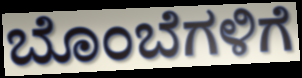
ಬೊಂಬೆಗಳಿಗೆ